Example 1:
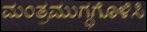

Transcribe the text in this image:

ಮಂತ್ರಮುಗ್ಧಗೊಳಿಸಿ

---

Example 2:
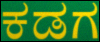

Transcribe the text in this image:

ಕಡಗ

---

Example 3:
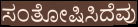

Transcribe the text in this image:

ಸಂತೋಷಿಸಿದೆವು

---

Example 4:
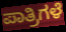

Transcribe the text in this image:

ಪಾತ್ರಿಗಳೆ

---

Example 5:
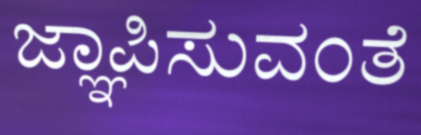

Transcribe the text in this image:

ಜ್ಞಾಪಿಸುವಂತೆ